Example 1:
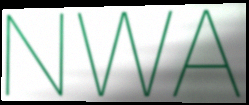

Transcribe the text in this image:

NWA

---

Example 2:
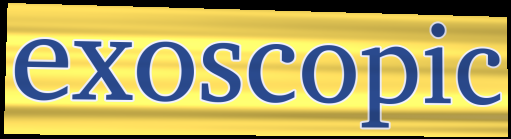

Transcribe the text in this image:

exoscopic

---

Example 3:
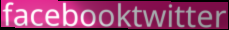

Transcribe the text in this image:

facebooktwitter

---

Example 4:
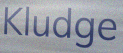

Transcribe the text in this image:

Kludge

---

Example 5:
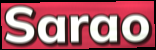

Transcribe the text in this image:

Sarao